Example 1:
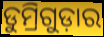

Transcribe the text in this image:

ଡୁମ୍ରିଗୁଡ଼ାର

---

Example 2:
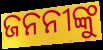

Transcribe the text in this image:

ଜନନୀଙ୍କୁ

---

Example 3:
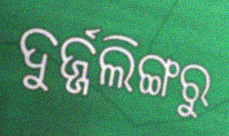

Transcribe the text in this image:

ଦୁର୍ଜ୍ଜଲିଙ୍ଗରୁ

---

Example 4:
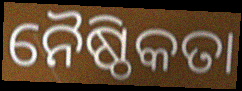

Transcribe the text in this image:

ନୈଷ୍ଠିକତା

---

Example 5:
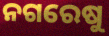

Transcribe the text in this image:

ନଗରେଷୁ